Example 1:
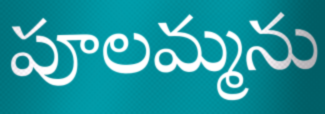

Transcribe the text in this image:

పూలమ్మను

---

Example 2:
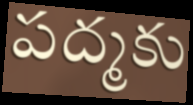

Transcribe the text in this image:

పద్మకు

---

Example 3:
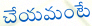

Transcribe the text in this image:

చేయమంటే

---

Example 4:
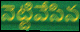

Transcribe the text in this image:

నెట్టివేసిన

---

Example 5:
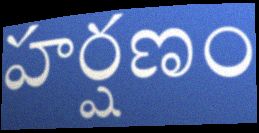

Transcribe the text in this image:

హర్షణం